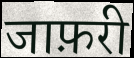
जाफ़री